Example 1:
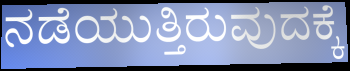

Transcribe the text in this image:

ನಡೆಯುತ್ತಿರುವುದಕ್ಕೆ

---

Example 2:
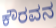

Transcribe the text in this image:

ಕೌರವನ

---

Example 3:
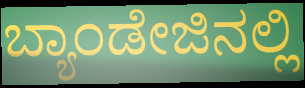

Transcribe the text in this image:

ಬ್ಯಾಂಡೇಜಿನಲ್ಲಿ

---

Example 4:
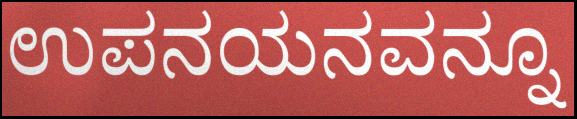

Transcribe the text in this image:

ಉಪನಯನವನ್ನೂ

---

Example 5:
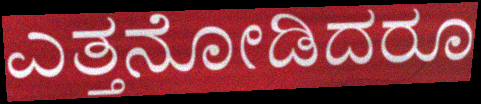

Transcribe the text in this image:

ಎತ್ತನೋಡಿದರೂ